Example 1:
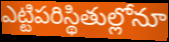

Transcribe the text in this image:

ఎట్టిపరిస్థితుల్లోనూ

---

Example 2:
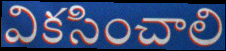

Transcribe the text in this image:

వికసించాలి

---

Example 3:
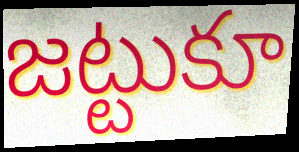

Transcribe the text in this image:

జట్టుకూ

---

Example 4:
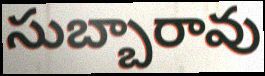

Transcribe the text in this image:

సుబ్బారావు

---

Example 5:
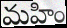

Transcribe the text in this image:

మహిం